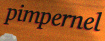
pimpernel